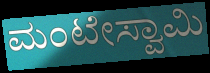
ಮಂಟೇಸ್ವಾಮಿ